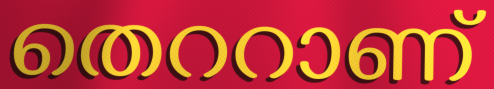
തെററാണ്